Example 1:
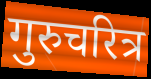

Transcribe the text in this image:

गुरुचरित्र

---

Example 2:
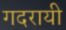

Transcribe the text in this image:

गदरायी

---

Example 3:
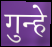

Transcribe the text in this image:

गुन्हे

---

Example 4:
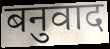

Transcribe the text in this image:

बनुवाद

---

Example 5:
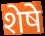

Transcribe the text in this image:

शेषे